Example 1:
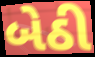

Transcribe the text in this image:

બેઠી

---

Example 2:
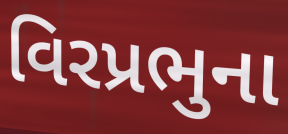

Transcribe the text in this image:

વિરપ્રભુના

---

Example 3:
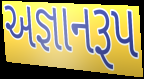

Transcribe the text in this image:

અજ્ઞાનરૂપ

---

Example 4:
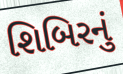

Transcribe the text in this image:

શિબિરનું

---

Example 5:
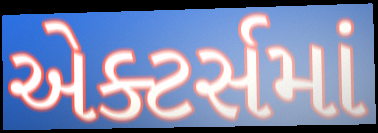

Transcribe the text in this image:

એક્ટર્સમાં